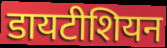
डायटीशियन